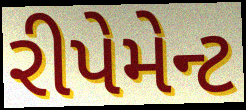
રીપેમેન્ટ